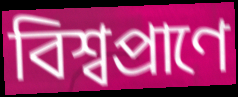
বিশ্বপ্রাণে